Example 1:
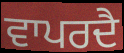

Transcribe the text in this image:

ਵਾਪਰਦੈ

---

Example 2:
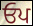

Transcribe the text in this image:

ਓਪ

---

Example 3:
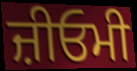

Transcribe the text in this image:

ਜ਼ੀਓਮੀ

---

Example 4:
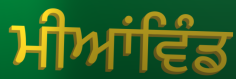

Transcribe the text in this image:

ਮੀਆਂਵਿੰਡ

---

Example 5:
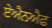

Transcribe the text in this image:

ਏਐਨਐਫ